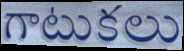
గాటుకలు